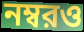
নম্বরও